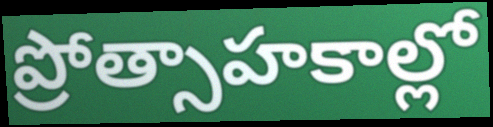
ప్రోత్సాహకాల్లో